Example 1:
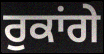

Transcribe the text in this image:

ਰੁਕਾਂਗੇ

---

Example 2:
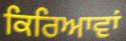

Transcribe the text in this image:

ਕਿਰਿਆਵਾਂ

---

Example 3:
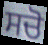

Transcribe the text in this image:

ਸਚੋ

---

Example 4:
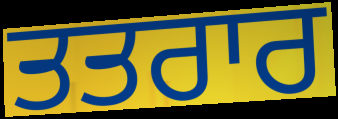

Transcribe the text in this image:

ਤਤਰਾਰ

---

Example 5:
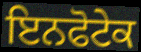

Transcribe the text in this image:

ਇਨਫੋਟੇਕ